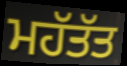
ਮਹੱਤੱਤ